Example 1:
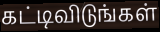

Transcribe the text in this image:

கட்டிவிடுங்கள்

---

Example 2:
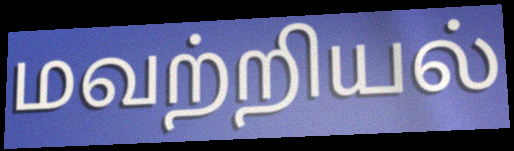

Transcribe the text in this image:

மவற்றியல்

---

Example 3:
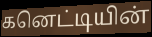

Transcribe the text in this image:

கனெட்டியின்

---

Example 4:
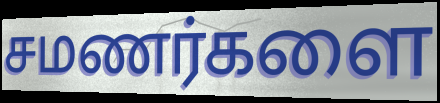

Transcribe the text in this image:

சமணர்களை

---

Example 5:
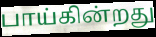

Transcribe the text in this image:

பாய்கின்றது